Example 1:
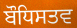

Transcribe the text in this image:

ਬੌਧਿਸਤਵ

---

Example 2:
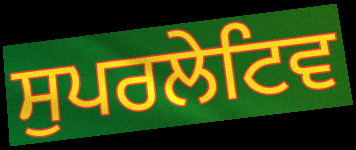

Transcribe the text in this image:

ਸੁਪਰਲੇਟਿਵ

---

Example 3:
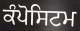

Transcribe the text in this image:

ਕੰਪੋਸਿਟਮ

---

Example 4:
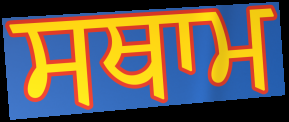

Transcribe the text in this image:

ਸਥਾਮ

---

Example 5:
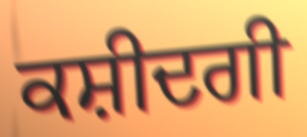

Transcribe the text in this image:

ਕਸ਼ੀਦਗੀ